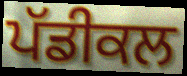
ਪੱਡੀਕਲ